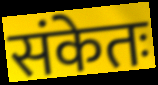
संकेतः